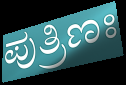
ಪುತ್ರಿಣಃ